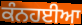
ਕੰਨਹਈਆ